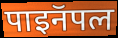
पाइनॅपल